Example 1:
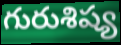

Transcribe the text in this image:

గురుశిష్య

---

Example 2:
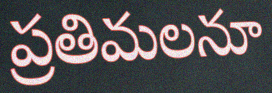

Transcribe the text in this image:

ప్రతిమలనూ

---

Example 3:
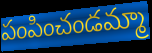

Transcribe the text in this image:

పంపించండమ్మా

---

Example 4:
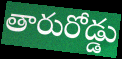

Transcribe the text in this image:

తారురోడ్డు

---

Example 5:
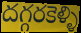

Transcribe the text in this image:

దగ్గరకెళ్ళి